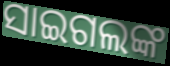
ସାଇଗଲଙ୍କ